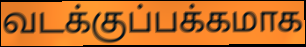
வடக்குப்பக்கமாக